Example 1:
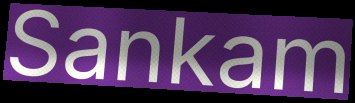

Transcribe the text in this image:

Sankam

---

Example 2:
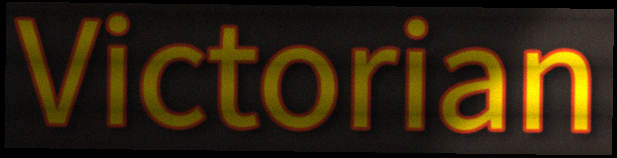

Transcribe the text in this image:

Victorian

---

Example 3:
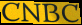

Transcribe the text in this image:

CNBC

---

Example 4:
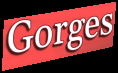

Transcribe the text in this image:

Gorges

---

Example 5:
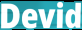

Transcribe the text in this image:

Devid